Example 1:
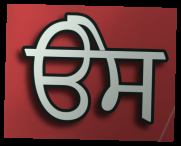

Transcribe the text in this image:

ੳੇਸ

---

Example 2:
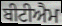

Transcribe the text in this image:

ਬੀਟੀਐਮ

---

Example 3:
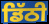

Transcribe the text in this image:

ਡਿੱਠੀ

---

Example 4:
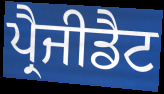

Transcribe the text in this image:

ਪ੍ਰੈਜੀਡੈਟ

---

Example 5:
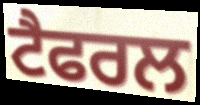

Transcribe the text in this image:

ਟੈਫਰਲ